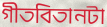
গীতবিতানটা